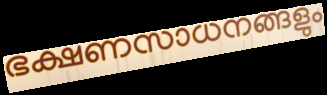
ഭക്ഷണസാധനങ്ങളും